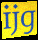
ijg